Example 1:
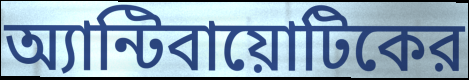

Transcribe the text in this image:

অ্যান্টিবায়োটিকের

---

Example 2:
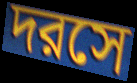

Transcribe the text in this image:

দরসে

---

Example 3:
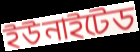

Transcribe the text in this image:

ইউনাইটেড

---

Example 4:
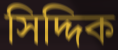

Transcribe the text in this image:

সিদ্দিক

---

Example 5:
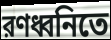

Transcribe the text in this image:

রণধ্বনিতে